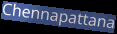
Chennapattana